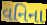
વનિના